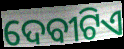
ଦେବୀଟିଏ